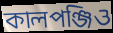
কালপঞ্জিও